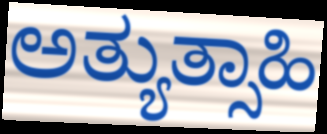
ಅತ್ಯುತ್ಸಾಹಿ